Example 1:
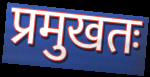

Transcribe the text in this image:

प्रमुखतः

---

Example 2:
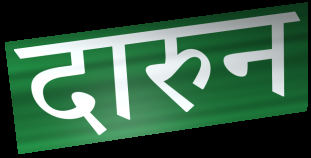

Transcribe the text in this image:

दारुन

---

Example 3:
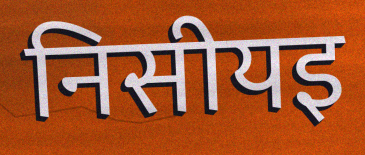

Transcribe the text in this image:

निसीयइ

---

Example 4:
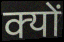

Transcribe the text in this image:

क्‍यों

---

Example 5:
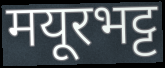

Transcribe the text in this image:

मयूरभट्ट